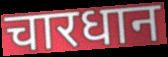
चारधान